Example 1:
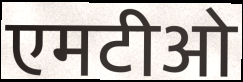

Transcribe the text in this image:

एमटीओ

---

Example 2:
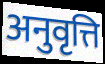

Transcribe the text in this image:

अनुवृत्ति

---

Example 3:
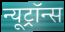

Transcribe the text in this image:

न्यूट्रॉन्स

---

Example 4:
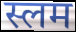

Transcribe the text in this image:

स्लम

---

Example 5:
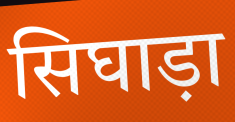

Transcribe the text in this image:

सिघाड़ा